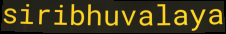
siribhuvalaya